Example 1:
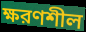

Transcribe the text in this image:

ক্ষরণশীল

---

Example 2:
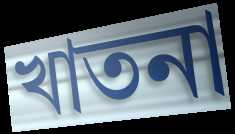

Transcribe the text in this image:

খাতনা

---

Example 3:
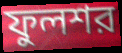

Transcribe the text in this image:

ফুলশর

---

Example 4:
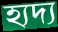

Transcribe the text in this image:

হ্যদ্য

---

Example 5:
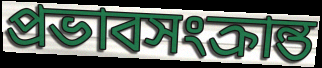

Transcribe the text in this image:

প্রভাবসংক্রান্ত